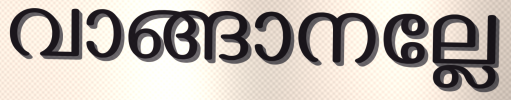
വാങ്ങാനല്ലേ